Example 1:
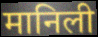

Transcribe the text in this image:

मानिली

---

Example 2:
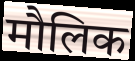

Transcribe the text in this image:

मौलिक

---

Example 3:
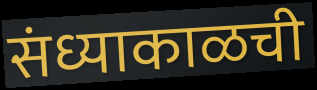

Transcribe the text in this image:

संध्याकाळची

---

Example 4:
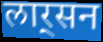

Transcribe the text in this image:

लार्सन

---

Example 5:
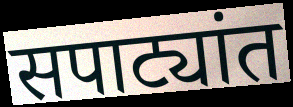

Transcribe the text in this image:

सपाट्यांत